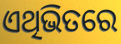
ଏଥିଭିତରେ